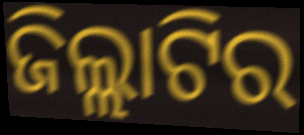
ଜିଲ୍ଲାଟିର